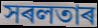
সৰলতাৰ